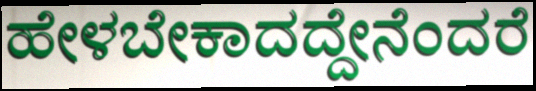
ಹೇಳಬೇಕಾದದ್ದೇನೆಂದರೆ